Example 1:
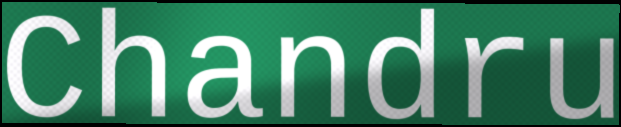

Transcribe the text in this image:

Chandru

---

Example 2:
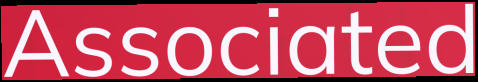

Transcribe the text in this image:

Associated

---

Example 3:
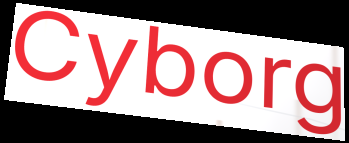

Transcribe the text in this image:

Cyborg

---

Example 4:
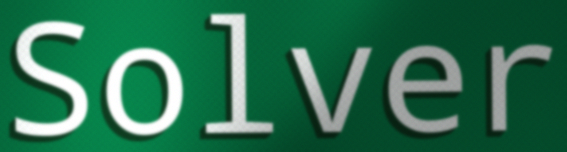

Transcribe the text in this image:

Solver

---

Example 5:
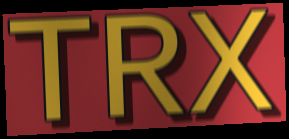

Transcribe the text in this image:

TRX